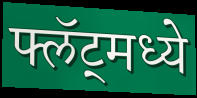
फ्लॅट्मध्ये